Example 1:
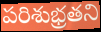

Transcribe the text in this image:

పరిశుభ్రతని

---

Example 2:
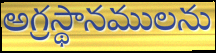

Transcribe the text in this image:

అగ్రస్థానములను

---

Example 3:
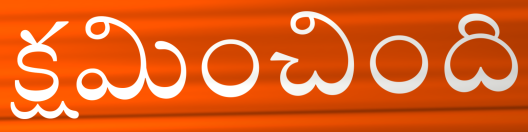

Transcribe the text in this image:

క్షమించింది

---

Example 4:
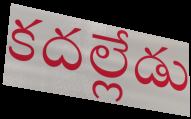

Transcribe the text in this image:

కదల్లేడు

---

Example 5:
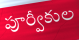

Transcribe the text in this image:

పూర్వీకుల